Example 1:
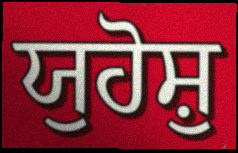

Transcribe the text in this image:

ਯੁਹੋਸ਼ੁ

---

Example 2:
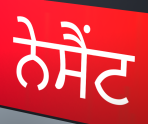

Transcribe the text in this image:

ਨੇਸੈਂਟ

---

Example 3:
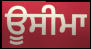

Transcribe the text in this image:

ਊਸੀਮਾ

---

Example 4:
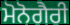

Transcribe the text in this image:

ਮੋਨੋਗੈਰੀ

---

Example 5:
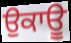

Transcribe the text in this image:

ਉਕਾਊ